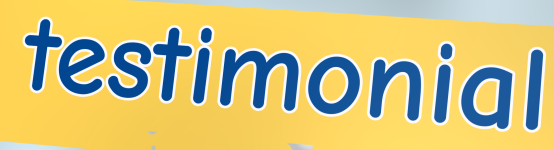
testimonial